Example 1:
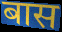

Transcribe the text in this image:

बास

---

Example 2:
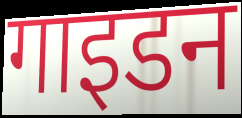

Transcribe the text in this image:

गाइडन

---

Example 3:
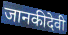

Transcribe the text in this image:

जानकीदेवी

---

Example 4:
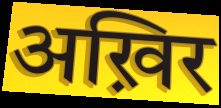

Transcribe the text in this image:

अख़िर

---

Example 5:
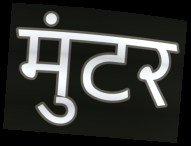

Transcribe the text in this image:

मुंटर